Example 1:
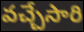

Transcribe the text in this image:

వచ్చేసారి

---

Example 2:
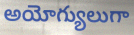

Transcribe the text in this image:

అయోగ్యులుగా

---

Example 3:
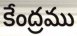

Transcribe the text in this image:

కేంద్రము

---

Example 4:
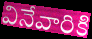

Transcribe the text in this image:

వినేవారికి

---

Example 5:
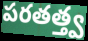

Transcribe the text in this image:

పరతత్త్వ